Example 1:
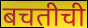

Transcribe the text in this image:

बचतीची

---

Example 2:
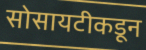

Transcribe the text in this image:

सोसायटीकडून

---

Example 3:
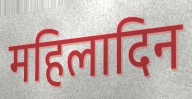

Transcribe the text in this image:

महिलादिन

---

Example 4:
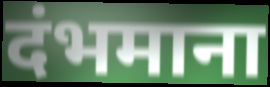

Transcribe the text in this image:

दंभमाना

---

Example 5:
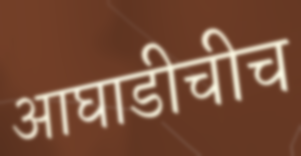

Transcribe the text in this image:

आघाडीचीच